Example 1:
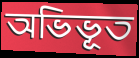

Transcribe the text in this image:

অভিভূত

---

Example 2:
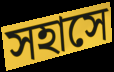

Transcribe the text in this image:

সহাসে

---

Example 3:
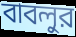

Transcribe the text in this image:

বাবলুর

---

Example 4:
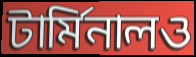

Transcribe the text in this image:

টার্মিনালও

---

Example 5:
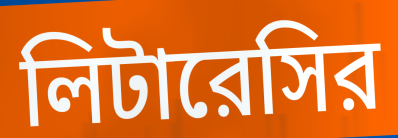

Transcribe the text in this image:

লিটারেসির